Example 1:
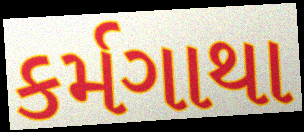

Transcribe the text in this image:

કર્મગાથા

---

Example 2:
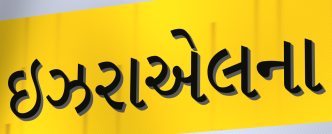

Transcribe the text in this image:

ઇઝરાએલના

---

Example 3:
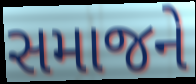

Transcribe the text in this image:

સમાજને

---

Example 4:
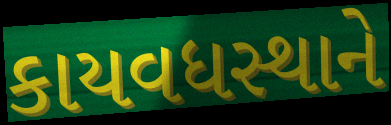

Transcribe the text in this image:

કાયવધસ્થાને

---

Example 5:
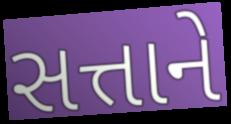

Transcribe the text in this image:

સત્તાને